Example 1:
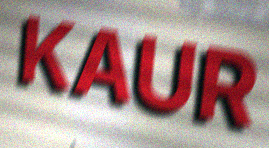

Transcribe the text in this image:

KAUR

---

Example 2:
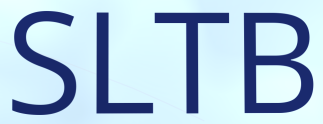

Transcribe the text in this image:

SLTB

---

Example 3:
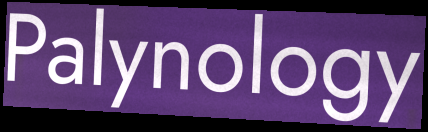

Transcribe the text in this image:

Palynology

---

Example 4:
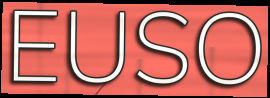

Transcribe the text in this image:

EUSO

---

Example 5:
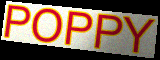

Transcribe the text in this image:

POPPY